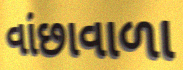
વાંછાવાળા